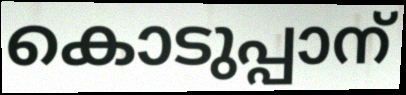
കൊടുപ്പാന്